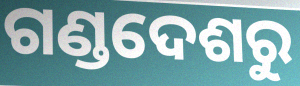
ଗଣ୍ଡଦେଶରୁ